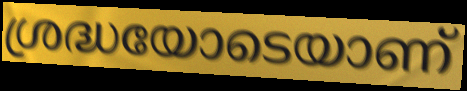
ശ്രദ്ധയോടെയാണ്